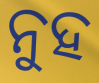
ନୁହ